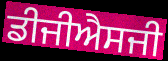
ਡੀਜੀਐਸਜੀ